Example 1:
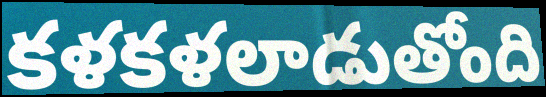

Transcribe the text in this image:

కళకళలాడుతోంది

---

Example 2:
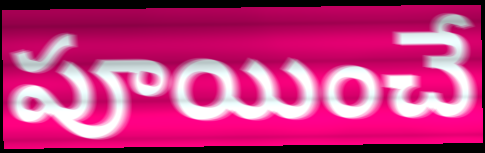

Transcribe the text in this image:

పూయించే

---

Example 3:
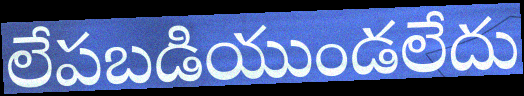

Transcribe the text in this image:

లేపబడియుండలేదు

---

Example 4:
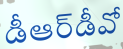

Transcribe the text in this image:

డీఆర్‌డీవో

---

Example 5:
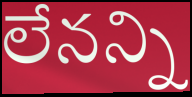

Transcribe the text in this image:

లేనన్ని